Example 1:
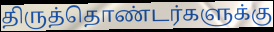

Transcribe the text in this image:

திருத்தொண்டர்களுக்கு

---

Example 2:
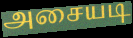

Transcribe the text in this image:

அசையடி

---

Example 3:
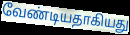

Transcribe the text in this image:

வேண்டியதாகியது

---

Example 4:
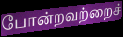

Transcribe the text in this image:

போன்றவற்றைச்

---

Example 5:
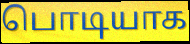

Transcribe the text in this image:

பொடியாக